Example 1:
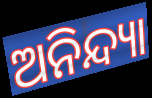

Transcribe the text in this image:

ଅନିନ୍ଦ୍ୟା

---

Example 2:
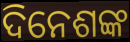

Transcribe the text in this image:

ଦିନେଶଙ୍କ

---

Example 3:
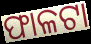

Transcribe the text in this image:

ଫାଳଟା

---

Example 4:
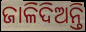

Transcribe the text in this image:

ଜାଳିଦିଅନ୍ତି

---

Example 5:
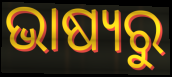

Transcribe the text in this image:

ଭାଷ୍ୟରୁ